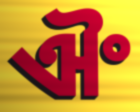
ଐଂ